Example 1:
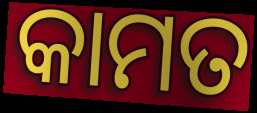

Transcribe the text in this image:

କାମତ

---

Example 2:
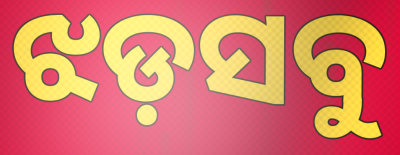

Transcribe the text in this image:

ଝଡ଼ସବୁ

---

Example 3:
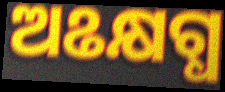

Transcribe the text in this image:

ଅଌକ୍ଷଗ୍ଧ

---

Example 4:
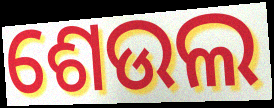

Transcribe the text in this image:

ଶେଉଲ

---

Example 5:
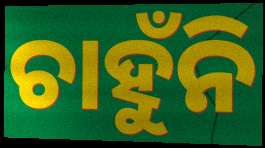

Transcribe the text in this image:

ଚାହୁଁନି